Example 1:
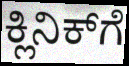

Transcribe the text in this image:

ಕ್ಲಿನಿಕ್‍ಗೆ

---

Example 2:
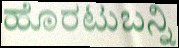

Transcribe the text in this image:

ಹೊರಟುಬನ್ನಿ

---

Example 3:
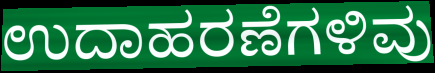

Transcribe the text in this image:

ಉದಾಹರಣೆಗಳಿವು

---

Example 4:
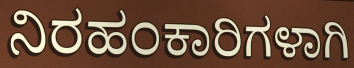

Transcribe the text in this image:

ನಿರಹಂಕಾರಿಗಳಾಗಿ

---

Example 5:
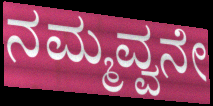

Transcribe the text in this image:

ನಮ್ಮವ್ವನೇ